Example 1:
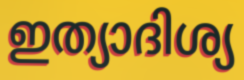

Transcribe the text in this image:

ഇത്യാദിശ്യ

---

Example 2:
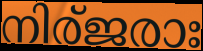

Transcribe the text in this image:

നിര്ജരാഃ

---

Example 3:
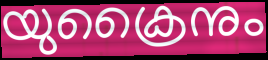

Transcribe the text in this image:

യുക്രൈനും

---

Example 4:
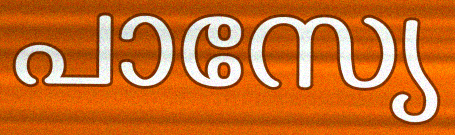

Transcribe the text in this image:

പാസ്യേ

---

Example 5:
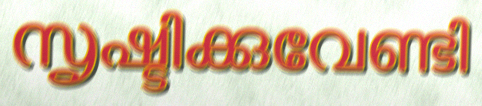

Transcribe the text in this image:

സൃഷ്ടിക്കുവേണ്ടി